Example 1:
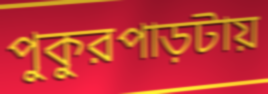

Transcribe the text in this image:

পুকুরপাড়টায়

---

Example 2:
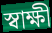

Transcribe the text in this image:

স্বাক্ষী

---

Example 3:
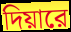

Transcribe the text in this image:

দিয়ারে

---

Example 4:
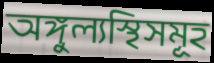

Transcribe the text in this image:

অঙ্গুল্যস্থিসমূহ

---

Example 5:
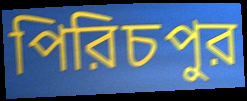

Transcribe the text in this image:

পিরিচপুর